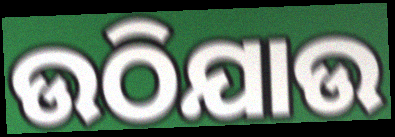
ଉଠିଯାଉ